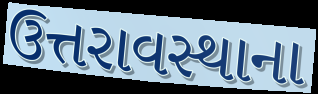
ઉત્તરાવસ્થાના